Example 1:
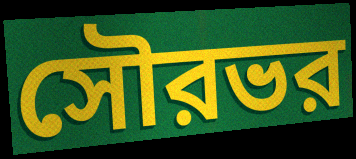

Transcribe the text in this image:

সৌরভর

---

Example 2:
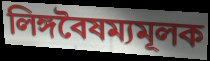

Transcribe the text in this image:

লিঙ্গবৈষম্যমূলক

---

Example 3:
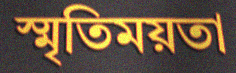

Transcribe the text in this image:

স্মৃতিময়তা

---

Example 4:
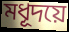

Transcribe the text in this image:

মধূদয়ে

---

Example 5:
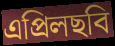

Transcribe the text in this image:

এপ্রিলছবি